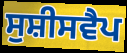
ਸੁਸ਼ੀਸਵੈਪ